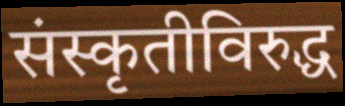
संस्कृतीविरुद्ध